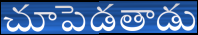
చూపెడతాడు